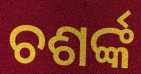
ଚଶର୍ଙ୍କ